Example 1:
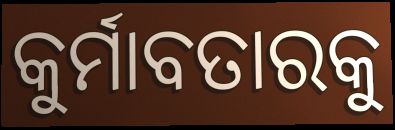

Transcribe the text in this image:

କୁର୍ମାବତାରକୁ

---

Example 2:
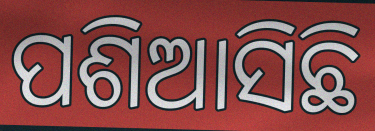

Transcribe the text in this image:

ପଶିଆସିଛି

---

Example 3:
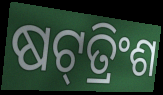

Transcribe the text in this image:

ଷଟ୍‌ତ୍ରିଂଶ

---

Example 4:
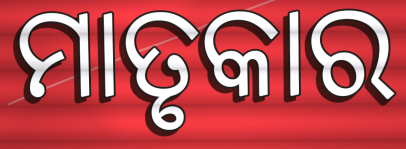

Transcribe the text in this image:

ମାତୃକାର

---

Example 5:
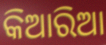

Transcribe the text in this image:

କିଆରିଆ